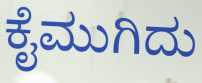
ಕೈಮುಗಿದು